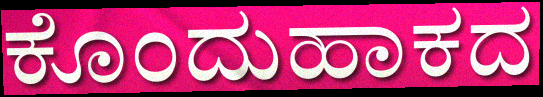
ಕೊಂದುಹಾಕದ